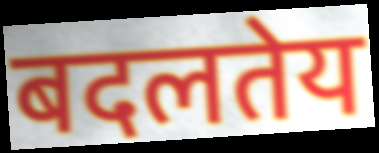
बदलतेय